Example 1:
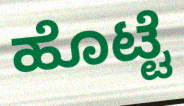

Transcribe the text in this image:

ಹೊಟ್ಟೆ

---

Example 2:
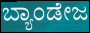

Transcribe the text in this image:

ಬ್ಯಾಂಡೇಜ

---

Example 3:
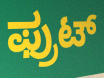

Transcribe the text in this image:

ಫ್ರುಟ್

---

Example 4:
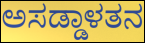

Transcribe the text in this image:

ಅಸಡ್ಡಾಳತನ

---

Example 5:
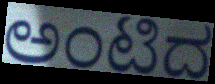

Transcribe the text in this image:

ಅಂಟಿದ